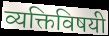
व्यक्तिविषयी